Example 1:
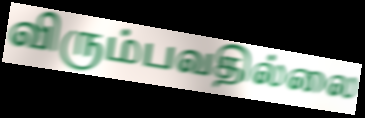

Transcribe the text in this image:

விரும்பவதில்லை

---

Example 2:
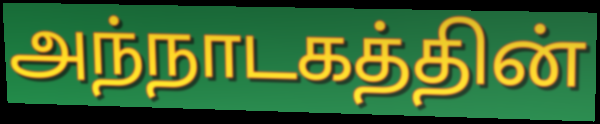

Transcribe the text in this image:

அந்நாடகத்தின்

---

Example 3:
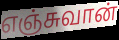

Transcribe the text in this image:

எஞ்சுவான்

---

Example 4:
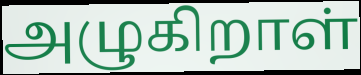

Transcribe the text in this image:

அழுகிறாள்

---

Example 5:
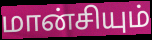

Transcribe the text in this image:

மான்சியும்